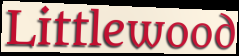
Littlewood